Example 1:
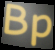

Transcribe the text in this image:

Bp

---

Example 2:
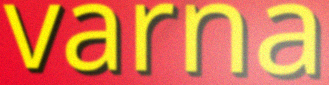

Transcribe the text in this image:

varna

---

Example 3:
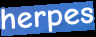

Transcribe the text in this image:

herpes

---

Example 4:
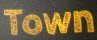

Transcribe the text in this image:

Town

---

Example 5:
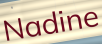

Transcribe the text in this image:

Nadine